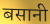
बसानी